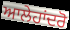
ਆਲੇਹਾਂਦਰੋ